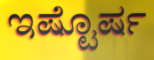
ಇಷ್ಟೊರ್ಷ